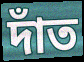
দাঁত